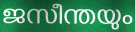
ജസീന്തയും